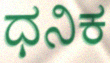
ಧನಿಕ